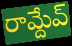
రామ్దేవ్